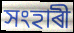
সংহাৰী